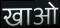
खाओ